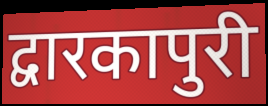
द्वारकापुरी